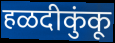
हळदीकुंकू